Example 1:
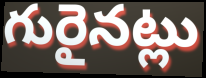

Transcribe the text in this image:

గురైనట్లు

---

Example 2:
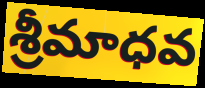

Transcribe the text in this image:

శ్రీమాధవ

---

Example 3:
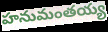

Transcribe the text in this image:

హనుమంతయ్య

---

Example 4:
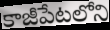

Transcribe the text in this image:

కాజీపేటలోని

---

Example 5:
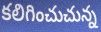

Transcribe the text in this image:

కలిగించుచున్న